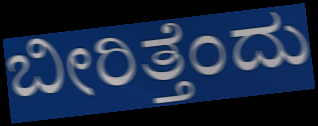
ಬೀರಿತ್ತೆಂದು